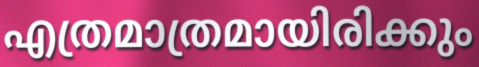
എത്രമാത്രമായിരിക്കും